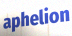
aphelion